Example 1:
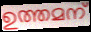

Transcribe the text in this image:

ഉത്തമന്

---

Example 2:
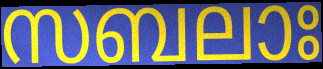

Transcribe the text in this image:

സബലാഃ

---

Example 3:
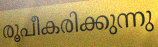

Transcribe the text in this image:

രൂപീകരിക്കുന്നു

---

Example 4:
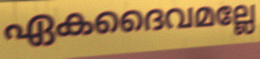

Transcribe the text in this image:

ഏകദൈവമല്ലേ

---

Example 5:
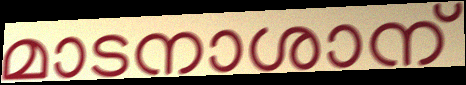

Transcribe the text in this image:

മാടനാശാന്